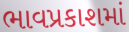
ભાવપ્રકાશમાં